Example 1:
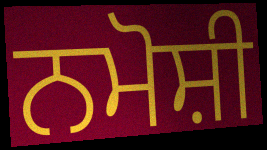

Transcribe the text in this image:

ਨਮੋਸ਼ੀ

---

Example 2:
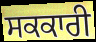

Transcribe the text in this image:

ਸਕਕਾਰੀ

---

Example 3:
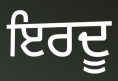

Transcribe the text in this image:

ਇਰਦੂ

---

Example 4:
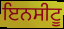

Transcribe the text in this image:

ਇਨਸੀਟੂ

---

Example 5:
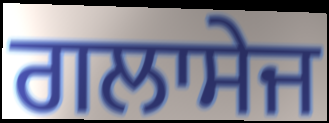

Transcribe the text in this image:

ਗਲਾਸੇਜ